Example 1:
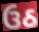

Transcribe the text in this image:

ઉઠ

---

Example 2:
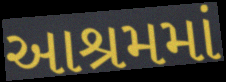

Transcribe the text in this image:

આશ્રમમાં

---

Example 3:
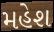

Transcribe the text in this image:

મહેશ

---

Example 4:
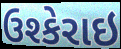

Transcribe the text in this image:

ઉશ્કેરાઇ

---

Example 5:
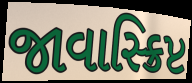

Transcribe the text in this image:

જાવાસ્ક્રિપ્ટ